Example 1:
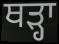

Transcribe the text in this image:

ਥੜ੍ਹਾ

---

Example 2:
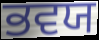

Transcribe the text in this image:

ਭਵਯ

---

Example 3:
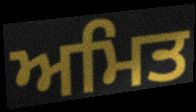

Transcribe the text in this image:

ਅਮਿਤ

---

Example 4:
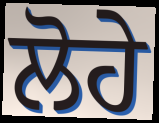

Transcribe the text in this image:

ਲੋਹੇ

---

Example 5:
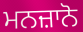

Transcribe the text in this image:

ਮਨਜ਼ਾਨੋ